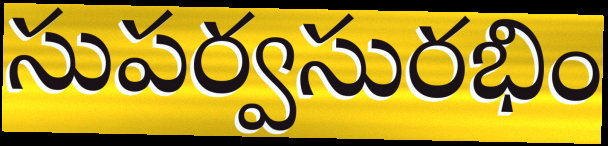
సుపర్వసురభిం